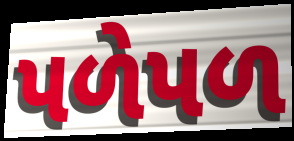
પળેપળ